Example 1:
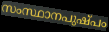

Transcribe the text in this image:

സംസ്ഥാനപുഷ്പം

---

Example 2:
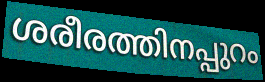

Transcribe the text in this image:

ശരീരത്തിനപ്പുറം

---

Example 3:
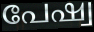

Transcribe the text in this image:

പേഷ്വ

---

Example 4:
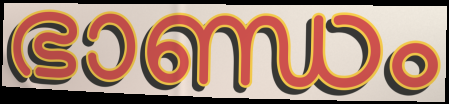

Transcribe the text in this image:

ഭാണ്ഡം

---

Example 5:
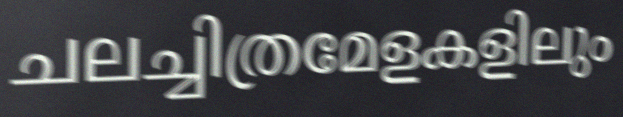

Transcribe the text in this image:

ചലച്ചിത്രമേളകളിലും